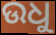
ଉଧୁ